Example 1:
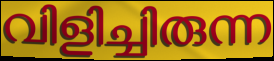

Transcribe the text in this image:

വിളിച്ചിരുന്ന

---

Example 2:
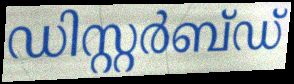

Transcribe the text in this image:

ഡിസ്റ്റർബ്ഡ്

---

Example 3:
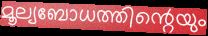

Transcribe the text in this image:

മൂല്യബോധത്തിന്റെയും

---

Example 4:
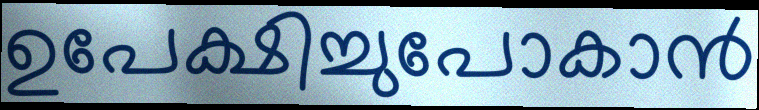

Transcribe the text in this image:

ഉപേക്ഷിച്ചുപോകാൻ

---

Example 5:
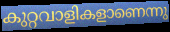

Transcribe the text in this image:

കുറ്റവാളികളാണെന്നു